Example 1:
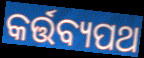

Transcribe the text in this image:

କର୍ତ୍ତବ୍ୟପଥ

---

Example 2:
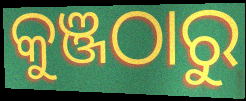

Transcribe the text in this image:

କୁଞ୍ଜଠାରୁ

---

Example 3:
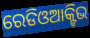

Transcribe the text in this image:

ରେଡିଓଆକ୍ଟିଭ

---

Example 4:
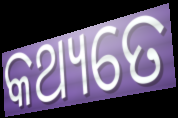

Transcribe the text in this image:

କଥ୍ୟତେ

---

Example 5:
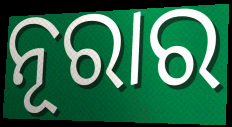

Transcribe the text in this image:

ନୂରାର